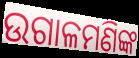
ଉଗାଳମଣିଙ୍କ